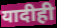
यादीही